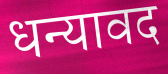
धन्यावद